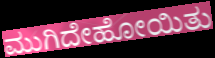
ಮುಗಿದೇಹೋಯಿತು